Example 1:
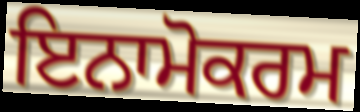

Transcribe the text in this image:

ਇਨਾਮੋਕਰਮ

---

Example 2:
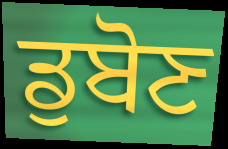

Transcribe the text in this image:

ਡੁਬੋਣ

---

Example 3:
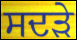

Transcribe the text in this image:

ਸਦੜੇ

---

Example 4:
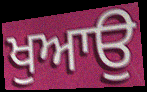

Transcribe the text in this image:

ਖੁਆਉ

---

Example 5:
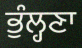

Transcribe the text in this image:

ਭੁੰਲ੍ਹਣਾ